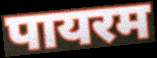
पायरम